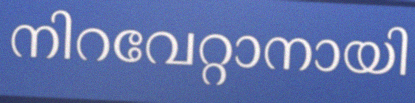
നിറവേറ്റാനായി